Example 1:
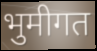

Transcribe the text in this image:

भुमीगत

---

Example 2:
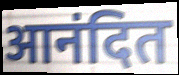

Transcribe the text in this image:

आनंदित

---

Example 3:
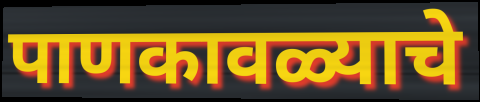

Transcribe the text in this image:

पाणकावळ्याचे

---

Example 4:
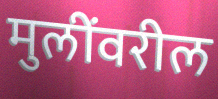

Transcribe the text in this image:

मुलींवरील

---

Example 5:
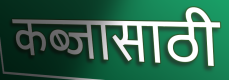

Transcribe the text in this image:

कब्जासाठी